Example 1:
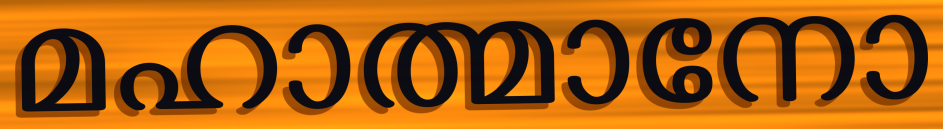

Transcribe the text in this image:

മഹാത്മാനോ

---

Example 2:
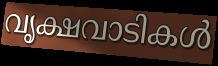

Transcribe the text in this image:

വൃക്ഷവാടികൾ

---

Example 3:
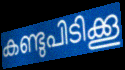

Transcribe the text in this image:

കണ്ടുപിടിക്കൂ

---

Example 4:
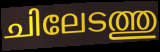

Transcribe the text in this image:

ചിലേടത്തു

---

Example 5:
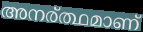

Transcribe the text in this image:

അനര്ത്ഥമാണ്